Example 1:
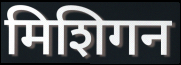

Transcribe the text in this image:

मिशिगन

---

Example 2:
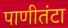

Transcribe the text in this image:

पाणीतंटा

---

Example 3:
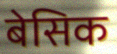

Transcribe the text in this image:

बेसिक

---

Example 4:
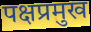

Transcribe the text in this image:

पक्षप्रमुख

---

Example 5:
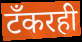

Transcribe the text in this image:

टँकरही